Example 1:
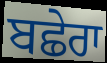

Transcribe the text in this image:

ਬਛੇਰਾ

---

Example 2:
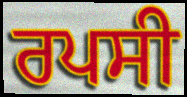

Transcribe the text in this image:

ਰਪਸੀ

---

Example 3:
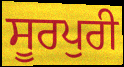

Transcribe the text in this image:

ਸੂਰਪੁਰੀ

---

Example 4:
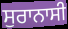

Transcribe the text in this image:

ਸੁਰਾਨਾਸੀ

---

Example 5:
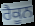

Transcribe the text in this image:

ਰੈਕੂਨ